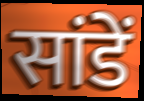
सांडें